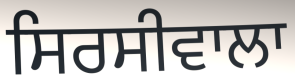
ਸਿਰਸੀਵਾਲਾ